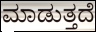
ಮಾಡುತ್ತದೆ